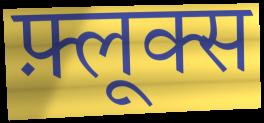
फ़्लूक्स